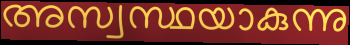
അസ്വസ്ഥയാകുന്നു